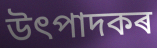
উৎপাদকৰ